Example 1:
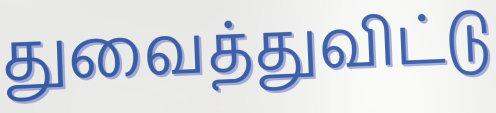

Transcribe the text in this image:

துவைத்துவிட்டு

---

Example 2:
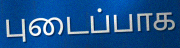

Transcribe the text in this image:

புடைப்பாக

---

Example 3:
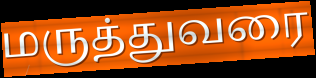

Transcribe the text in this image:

மருத்துவரை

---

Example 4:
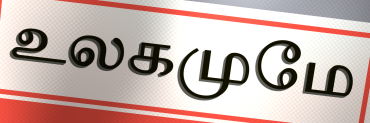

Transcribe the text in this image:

உலகமுமே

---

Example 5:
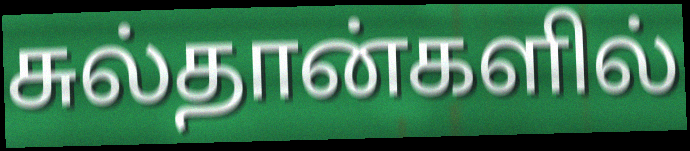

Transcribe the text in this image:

சுல்தான்களில்